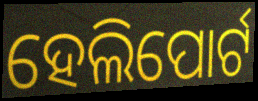
ହେଲିପୋର୍ଟ